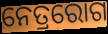
ନେତ୍ରରୋଗ